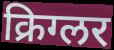
क्रिग्लर